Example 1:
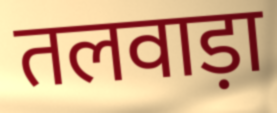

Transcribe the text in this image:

तलवाड़ा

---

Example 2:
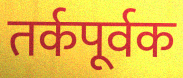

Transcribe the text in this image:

तर्कपूर्वक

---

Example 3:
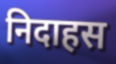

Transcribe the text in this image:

निदाहस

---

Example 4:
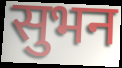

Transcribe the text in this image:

सुभन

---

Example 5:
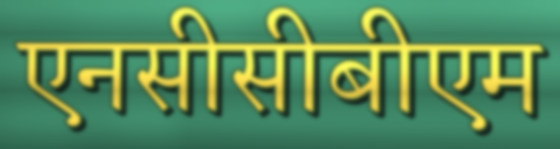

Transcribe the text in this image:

एनसीसीबीएम